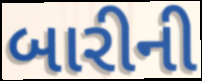
બારીની